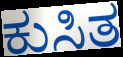
ಕುಸಿತ